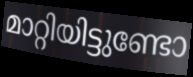
മാറ്റിയിട്ടുണ്ടോ